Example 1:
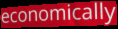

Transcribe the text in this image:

economically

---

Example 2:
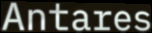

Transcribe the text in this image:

Antares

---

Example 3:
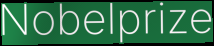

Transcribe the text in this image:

Nobelprize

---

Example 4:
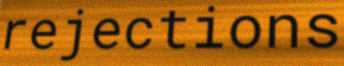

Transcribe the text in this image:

rejections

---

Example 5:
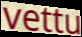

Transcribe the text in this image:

vettu